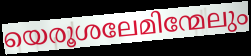
യെരൂശലേമിന്മേലും